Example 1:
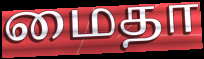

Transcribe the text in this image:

மைதா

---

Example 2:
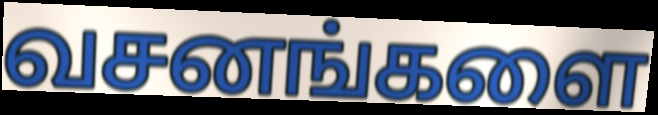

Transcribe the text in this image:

வசனங்களை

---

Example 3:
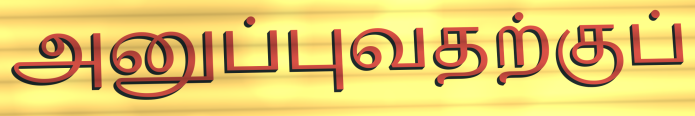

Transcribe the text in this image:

அனுப்புவதற்குப்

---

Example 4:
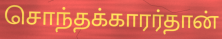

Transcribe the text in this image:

சொந்தக்காரர்தான்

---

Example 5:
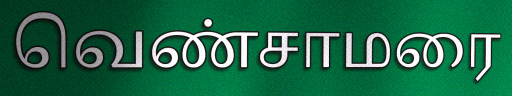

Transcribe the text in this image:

வெண்சாமரை